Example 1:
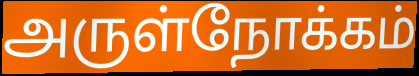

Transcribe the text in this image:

அருள்நோக்கம்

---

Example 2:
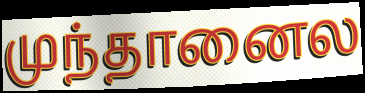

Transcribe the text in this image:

முந்தானைல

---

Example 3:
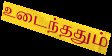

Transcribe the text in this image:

உடைந்ததும்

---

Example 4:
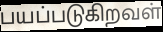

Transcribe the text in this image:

பயப்படுகிறவள்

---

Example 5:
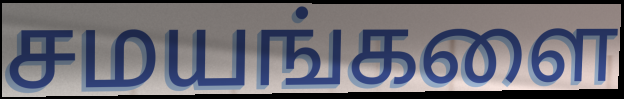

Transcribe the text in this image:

சமயங்களை